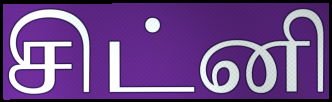
சிட்னி